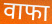
वाफा